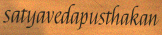
satyavedapusthakan